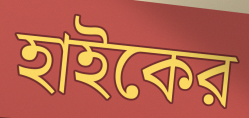
হাইকের